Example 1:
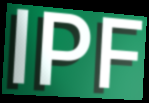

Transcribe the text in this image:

IPF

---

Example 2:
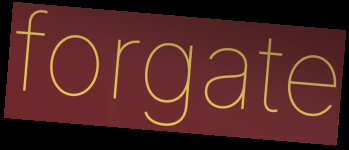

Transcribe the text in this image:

forgate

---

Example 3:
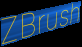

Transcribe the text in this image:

ZBrush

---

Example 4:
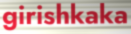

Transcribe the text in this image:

girishkaka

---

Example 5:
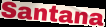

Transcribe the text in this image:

Santana